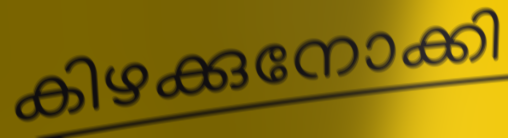
കിഴക്കുനോക്കി